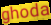
ghoda